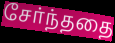
சேர்ந்ததை